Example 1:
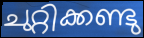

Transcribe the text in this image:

ചുറ്റിക്കണ്ടു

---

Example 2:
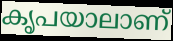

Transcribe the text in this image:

കൃപയാലാണ്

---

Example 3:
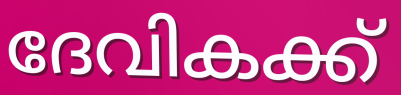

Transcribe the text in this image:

ദേവികക്ക്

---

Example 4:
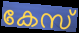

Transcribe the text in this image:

കേസ്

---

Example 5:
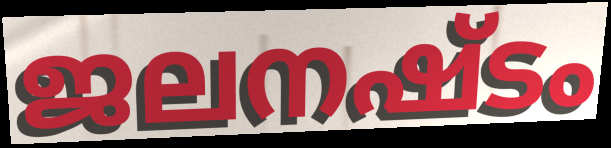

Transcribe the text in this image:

ജലനഷ്ടം